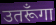
उतरूँगा